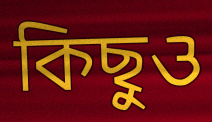
কিছুও